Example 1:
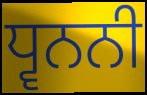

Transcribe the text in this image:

ਧ੍ਵਨਨੀ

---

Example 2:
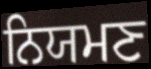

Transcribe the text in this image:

ਨਿਯਮਣ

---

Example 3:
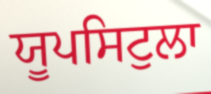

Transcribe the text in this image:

ਯੂਪਸਿਟੁਲਾ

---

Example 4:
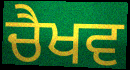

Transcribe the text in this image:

ਚੈਖਵ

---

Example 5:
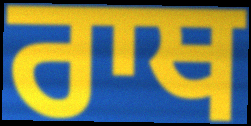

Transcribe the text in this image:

ਰਾਥ